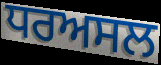
ਧਰਅਸਲ